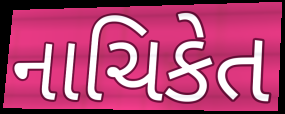
નાચિકેત